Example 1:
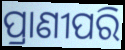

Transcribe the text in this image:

ପ୍ରାଣୀପରି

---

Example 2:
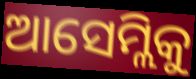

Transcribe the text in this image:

ଆସେମ୍ଲିକୁ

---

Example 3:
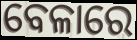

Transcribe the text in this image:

ବେଳାରେ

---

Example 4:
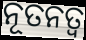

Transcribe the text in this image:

ନୂତନତ୍ୱ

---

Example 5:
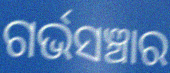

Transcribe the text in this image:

ଗର୍ଭସଞ୍ଚାର